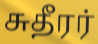
சுதீரர்